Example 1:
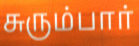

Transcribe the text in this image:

சுரும்பார்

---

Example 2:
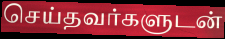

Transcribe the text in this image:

செய்தவர்களுடன்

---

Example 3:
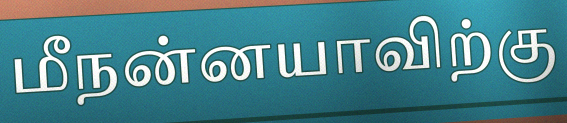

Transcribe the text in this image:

மீநன்னயாவிற்கு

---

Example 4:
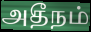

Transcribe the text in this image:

அதீநம்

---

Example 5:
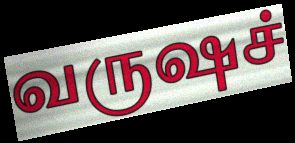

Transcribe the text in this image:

வருஷச்